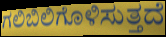
ಗಲಿಬಿಲಿಗೊಳಿಸುತ್ತದೆ